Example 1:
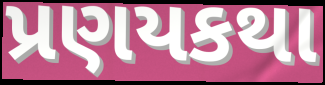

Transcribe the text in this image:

પ્રણયકથા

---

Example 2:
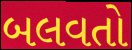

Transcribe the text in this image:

બલવતો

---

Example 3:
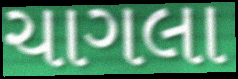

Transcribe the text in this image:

ચાગલા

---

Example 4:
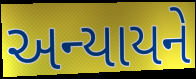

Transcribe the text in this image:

અન્યાયને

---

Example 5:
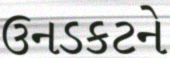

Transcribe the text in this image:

ઉનડકટને